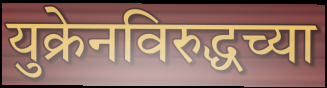
युक्रेनविरुद्धच्या